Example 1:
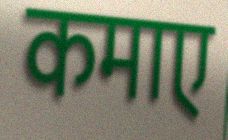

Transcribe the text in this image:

कमाए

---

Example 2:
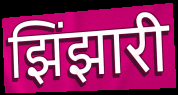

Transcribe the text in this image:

झिंझारी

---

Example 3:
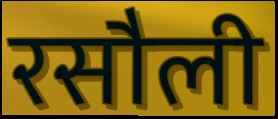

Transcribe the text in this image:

रसौली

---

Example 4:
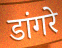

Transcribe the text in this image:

डांगरे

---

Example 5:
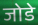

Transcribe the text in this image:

जोडे